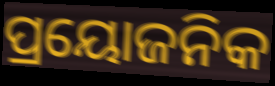
ପ୍ରୟୋଜନିକ